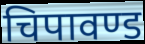
चिपावण्ड